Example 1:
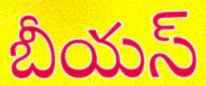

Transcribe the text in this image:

బీయస్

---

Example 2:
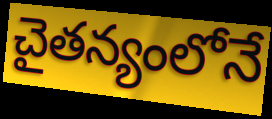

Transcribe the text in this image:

చైతన్యంలోనే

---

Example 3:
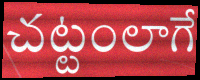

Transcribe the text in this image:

చట్టంలాగే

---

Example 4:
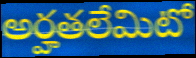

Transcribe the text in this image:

అర్హతలేమిటో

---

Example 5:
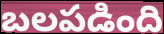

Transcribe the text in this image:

బలపడింది